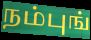
நம்புங்